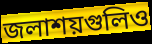
জলাশয়গুলিও